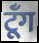
टूँग